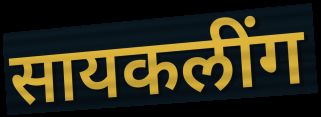
सायकलींग